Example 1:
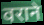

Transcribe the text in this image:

वराने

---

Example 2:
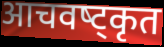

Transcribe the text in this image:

आचवष्ट्कृत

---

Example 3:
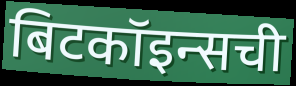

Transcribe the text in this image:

बिटकॉइन्सची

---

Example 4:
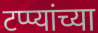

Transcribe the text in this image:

टप्प्यांच्या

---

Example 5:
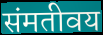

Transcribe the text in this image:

संमतीवय